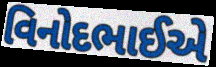
વિનોદભાઈએ